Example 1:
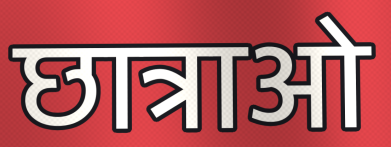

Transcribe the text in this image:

छात्राओ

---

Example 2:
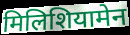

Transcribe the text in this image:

मिलिशियामेन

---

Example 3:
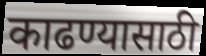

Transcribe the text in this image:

काढण्यासाठी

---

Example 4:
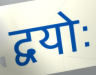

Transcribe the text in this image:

द्वयोः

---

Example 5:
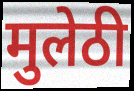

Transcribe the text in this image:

मुलेठी